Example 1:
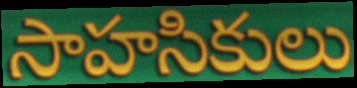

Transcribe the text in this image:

సాహసికులు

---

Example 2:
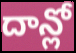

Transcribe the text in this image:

దాన్లో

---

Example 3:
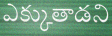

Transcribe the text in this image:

ఎక్కుతాడని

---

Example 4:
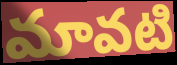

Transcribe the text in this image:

మావటి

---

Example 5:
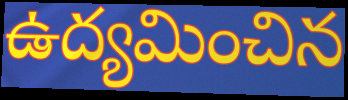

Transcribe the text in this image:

ఉద్యమించిన